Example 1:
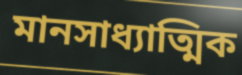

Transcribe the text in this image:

মানসাধ্যাত্মিক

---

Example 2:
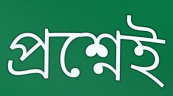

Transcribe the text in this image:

প্রশ্নেই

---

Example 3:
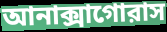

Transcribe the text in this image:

আনাক্সাগোরাস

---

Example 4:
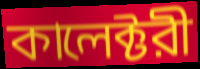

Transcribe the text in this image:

কালেক্টরী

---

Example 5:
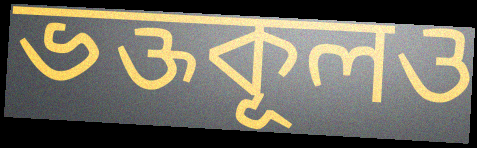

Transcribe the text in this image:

ভক্তকূলও